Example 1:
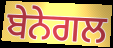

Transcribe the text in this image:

ਬੇਨੇਗਲ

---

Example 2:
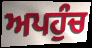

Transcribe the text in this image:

ਅਪਹੁੰਚ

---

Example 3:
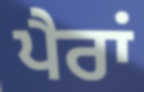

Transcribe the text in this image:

ਪੈਰਾਂ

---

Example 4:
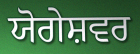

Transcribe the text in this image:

ਯੋਗੇਸ਼ਵਰ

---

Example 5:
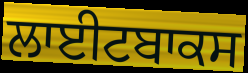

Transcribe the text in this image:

ਲਾਈਟਬਾਕਸ